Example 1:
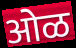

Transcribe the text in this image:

ओळ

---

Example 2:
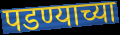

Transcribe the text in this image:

पडण्याच्या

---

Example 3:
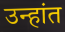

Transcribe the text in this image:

उन्हांत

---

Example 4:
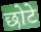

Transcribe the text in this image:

छोटे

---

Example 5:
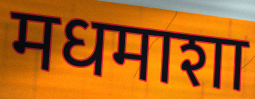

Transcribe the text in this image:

मधमाशा